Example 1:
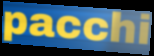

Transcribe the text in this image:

pacchi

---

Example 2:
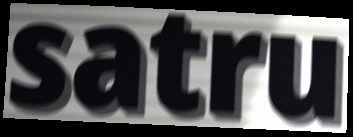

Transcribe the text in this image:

satru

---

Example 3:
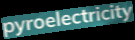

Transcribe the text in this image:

pyroelectricity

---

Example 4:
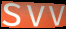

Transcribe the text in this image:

svv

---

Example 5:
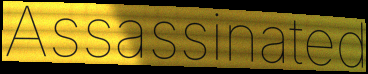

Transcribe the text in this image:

Assassinated